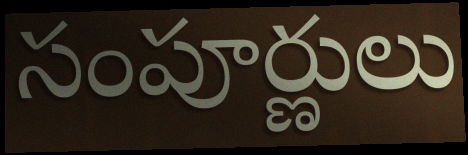
సంపూర్ణులు